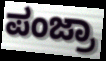
ಪಂಜ್ರಾ